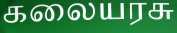
கலையரசு